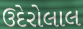
ઉદેરોલાલ